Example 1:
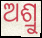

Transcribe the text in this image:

ଅଶ୍ରୁ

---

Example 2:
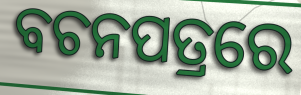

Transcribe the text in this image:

ବଚନପତ୍ରରେ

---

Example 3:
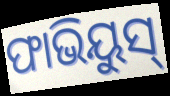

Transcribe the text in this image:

ଫାଭିୟୁସ୍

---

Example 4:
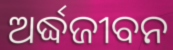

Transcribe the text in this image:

ଅର୍ଦ୍ଧଜୀବନ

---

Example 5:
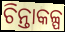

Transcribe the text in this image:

ଚିନ୍ତାକଳ୍ପ